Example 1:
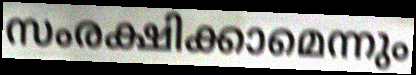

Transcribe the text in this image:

സംരക്ഷിക്കാമെന്നും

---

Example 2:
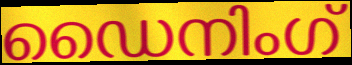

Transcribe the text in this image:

ഡൈനിംഗ്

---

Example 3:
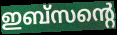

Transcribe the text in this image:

ഇബ്സന്റെ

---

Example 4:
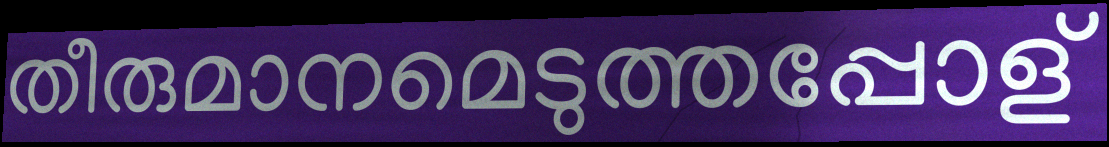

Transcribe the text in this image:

തീരുമാനമെടുത്തപ്പോള്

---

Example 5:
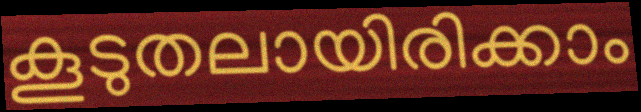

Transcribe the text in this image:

കൂടുതലായിരിക്കാം